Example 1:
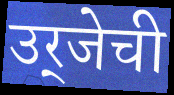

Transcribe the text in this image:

उर्जेची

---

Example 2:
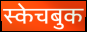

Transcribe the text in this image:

स्केचबुक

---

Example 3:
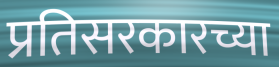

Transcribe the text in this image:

प्रतिसरकारच्या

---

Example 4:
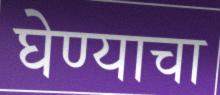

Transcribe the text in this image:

घेण्याचा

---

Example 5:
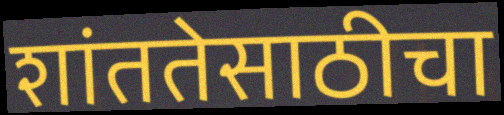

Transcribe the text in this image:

शांततेसाठीचा